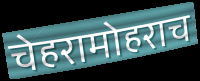
चेहरामोहराच